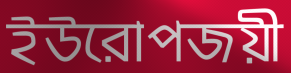
ইউরোপজয়ী